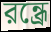
রন্ধ্রে